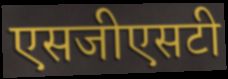
एसजीएसटी